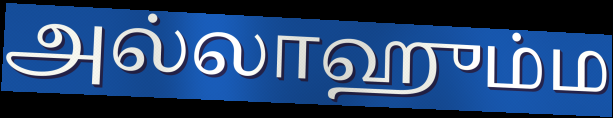
அல்லாஹும்ம